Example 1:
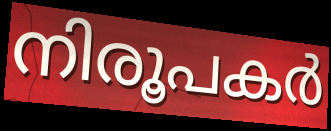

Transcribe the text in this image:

നിരൂപകർ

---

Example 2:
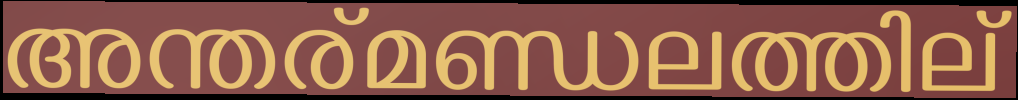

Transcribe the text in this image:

അന്തര്മണ്ഡലത്തില്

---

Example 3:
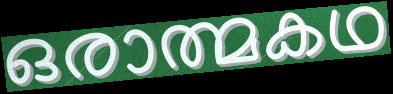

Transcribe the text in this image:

ഒരാത്മകഥ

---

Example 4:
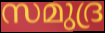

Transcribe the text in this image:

സമുദ്ര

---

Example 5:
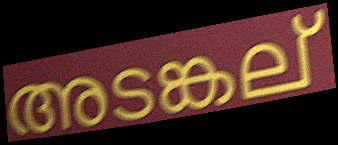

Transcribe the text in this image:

അടങ്കല്